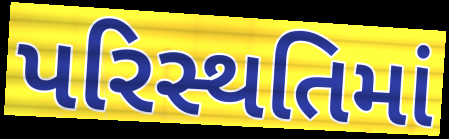
પરિસ્થતિમાં